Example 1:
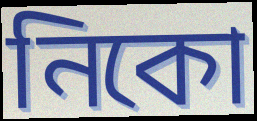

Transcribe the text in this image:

নিকো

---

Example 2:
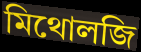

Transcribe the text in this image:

মিথোলজি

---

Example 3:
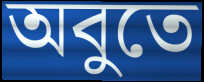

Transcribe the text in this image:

অবুতে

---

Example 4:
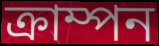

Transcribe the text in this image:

ক্রাম্পন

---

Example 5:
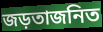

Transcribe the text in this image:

জড়তাজনিত